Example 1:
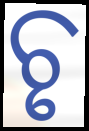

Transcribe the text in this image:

ଚୃ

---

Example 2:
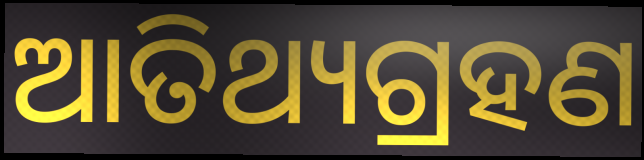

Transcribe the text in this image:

ଆତିଥ୍ୟଗ୍ରହଣ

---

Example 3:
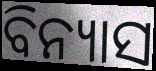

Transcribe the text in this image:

ବିନ୍ୟାସ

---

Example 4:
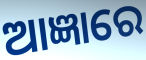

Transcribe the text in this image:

ଆଜ୍ଞାରେ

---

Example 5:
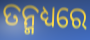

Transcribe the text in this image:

ତନ୍ମଧ୍ୟରେ